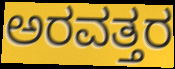
ಅರವತ್ತರ